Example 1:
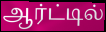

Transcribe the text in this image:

ஆர்ட்டில்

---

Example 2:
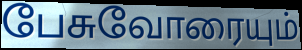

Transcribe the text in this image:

பேசுவோரையும்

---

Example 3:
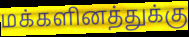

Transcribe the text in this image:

மக்களினத்துக்கு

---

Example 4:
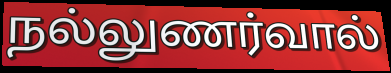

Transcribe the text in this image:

நல்லுணர்வால்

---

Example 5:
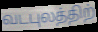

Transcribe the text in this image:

வடபுலத்திற்